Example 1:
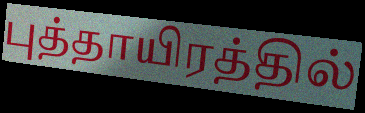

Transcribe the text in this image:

புத்தாயிரத்தில்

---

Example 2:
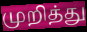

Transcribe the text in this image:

முறித்து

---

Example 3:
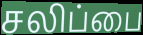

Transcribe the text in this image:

சலிப்பை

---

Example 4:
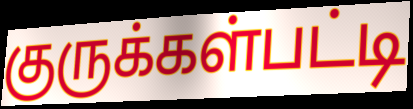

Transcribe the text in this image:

குருக்கள்பட்டி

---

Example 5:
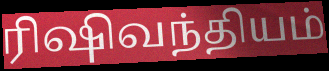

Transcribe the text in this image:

ரிஷிவந்தியம்